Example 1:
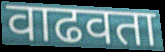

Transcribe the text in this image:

वाढवता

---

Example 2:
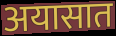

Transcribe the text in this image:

अयासात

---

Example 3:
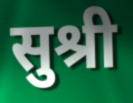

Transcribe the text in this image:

सुश्री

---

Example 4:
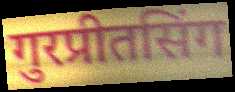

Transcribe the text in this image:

गुरप्रीतसिंग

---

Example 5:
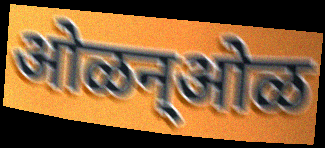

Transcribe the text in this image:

ओळन्ओळ